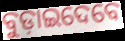
ବୁଡ଼ାଇଦେବେ